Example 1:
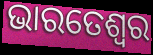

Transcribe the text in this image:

ଭାରତେଶ୍ୱର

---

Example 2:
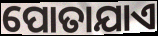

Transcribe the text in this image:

ପୋତାଯାଏ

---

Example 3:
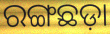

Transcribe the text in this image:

ରଙ୍ଗଛଡ଼ା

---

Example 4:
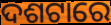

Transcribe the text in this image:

ଦଶଟାରେ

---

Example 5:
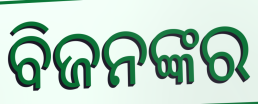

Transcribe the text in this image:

ବିଜନଙ୍କର